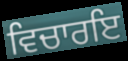
ਵਿਚਾਰਇ